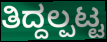
ತಿದ್ದಲ್ಪಟ್ಟ